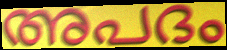
അപദം